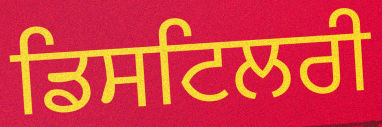
ਡਿਸਟਿਲਰੀ